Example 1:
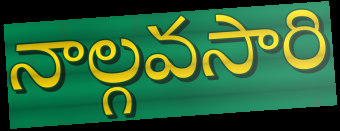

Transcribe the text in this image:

నాల్గవసారి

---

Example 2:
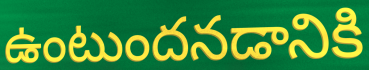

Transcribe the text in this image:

ఉంటుందనడానికి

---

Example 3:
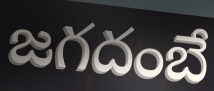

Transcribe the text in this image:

జగదంబే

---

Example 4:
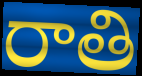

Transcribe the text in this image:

రాతి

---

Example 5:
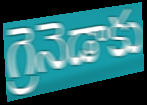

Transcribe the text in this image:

గ్రెనెడాకు